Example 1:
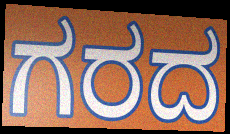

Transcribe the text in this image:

ಗರದ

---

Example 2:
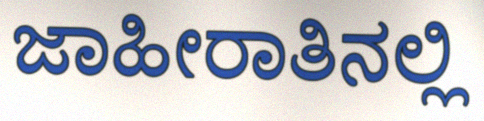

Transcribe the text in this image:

ಜಾಹೀರಾತಿನಲ್ಲಿ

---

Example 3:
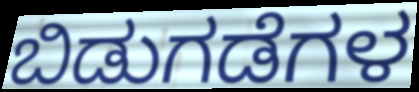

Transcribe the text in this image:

ಬಿಡುಗಡೆಗಳ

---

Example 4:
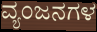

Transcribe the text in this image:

ವ್ಯಂಜನಗಳ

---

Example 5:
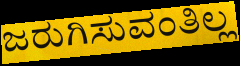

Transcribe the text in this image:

ಜರುಗಿಸುವಂತಿಲ್ಲ